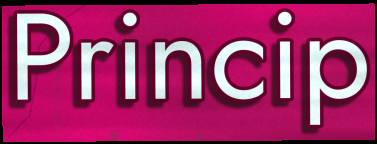
Princip